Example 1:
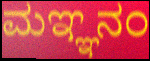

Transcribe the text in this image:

ಮಞ್ಞನಂ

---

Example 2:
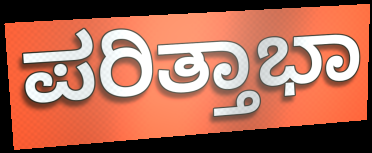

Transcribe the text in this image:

ಪರಿತ್ತಾಭಾ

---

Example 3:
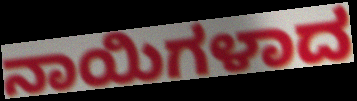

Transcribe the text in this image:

ನಾಯಿಗಳಾದ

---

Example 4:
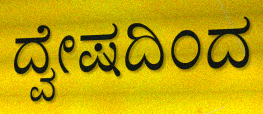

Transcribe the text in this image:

ದ್ವೇಷದಿಂದ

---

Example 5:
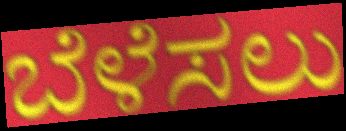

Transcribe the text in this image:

ಬೆಳೆಸಲು